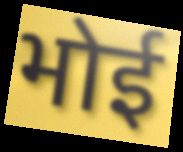
भोई